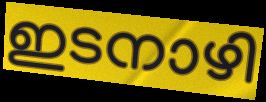
ഇടനാഴി